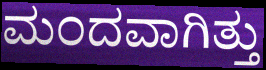
ಮಂದವಾಗಿತ್ತು